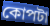
কোপটা